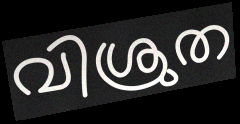
വിശ്രുത